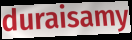
duraisamy